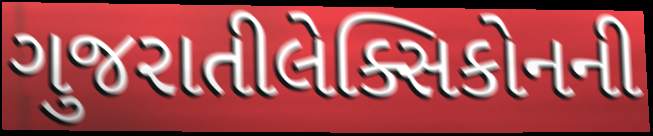
ગુજરાતીલેક્સિકોનની